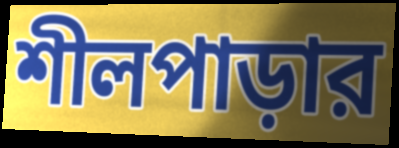
শীলপাড়ার